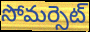
సోమర్సెట్